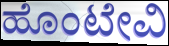
ಹೊಂಟೇವಿ